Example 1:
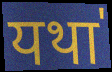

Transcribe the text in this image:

यथा॑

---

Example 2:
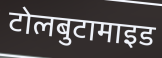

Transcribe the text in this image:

टोलबुटामाइड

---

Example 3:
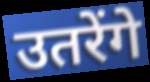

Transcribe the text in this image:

उतरेंगे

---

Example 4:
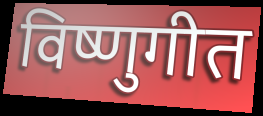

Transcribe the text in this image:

विष्णुगीत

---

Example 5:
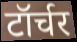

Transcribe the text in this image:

टॉर्चर